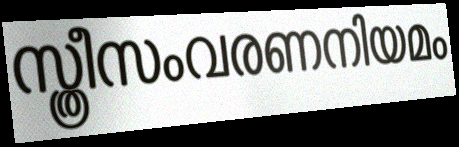
സ്ത്രീസംവരണനിയമം